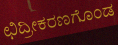
ಛಿದ್ರೀಕರಣಗೊಂಡ